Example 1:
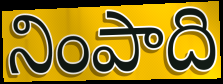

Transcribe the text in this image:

నింపాది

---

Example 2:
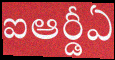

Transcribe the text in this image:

ఐఆర్డీఏ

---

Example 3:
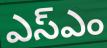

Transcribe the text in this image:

ఎస్ఎం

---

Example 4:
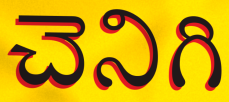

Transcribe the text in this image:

చెనిగి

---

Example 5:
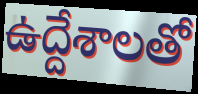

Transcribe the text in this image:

ఉద్దేశాలతో